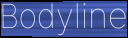
Bodyline